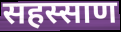
सहस्साण